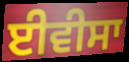
ਈਵੀਸਾ